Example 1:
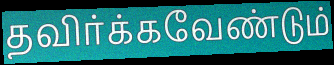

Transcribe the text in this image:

தவிர்க்கவேண்டும்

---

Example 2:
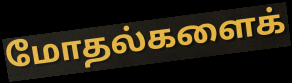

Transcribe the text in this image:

மோதல்களைக்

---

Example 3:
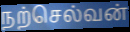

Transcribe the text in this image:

நற்செல்வன்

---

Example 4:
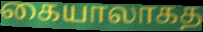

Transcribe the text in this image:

கையாலாகத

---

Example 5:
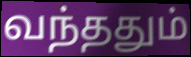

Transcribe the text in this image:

வந்ததும்